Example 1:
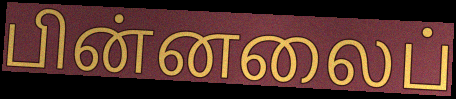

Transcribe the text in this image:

பின்னலைப்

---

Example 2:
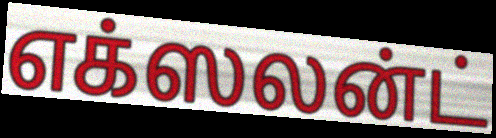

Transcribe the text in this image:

எக்ஸலன்ட்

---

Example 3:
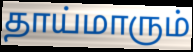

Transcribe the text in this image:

தாய்மாரும்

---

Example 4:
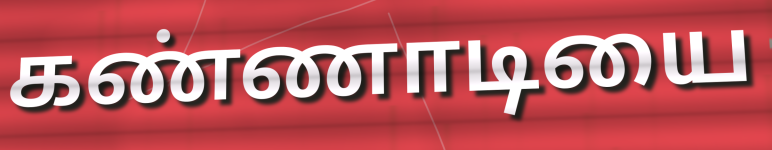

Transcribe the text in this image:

கண்ணாடியை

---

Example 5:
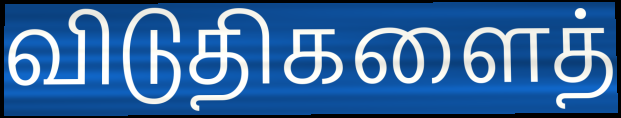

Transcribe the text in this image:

விடுதிகளைத்